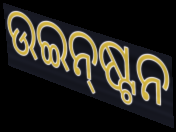
ଉଇନ୍‌ଷ୍ଟନ